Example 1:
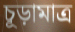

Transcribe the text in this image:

চূড়ামাত্র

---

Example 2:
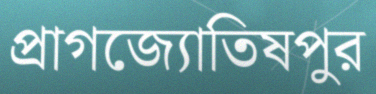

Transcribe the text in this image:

প্রাগজ্যোতিষপুর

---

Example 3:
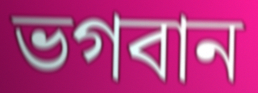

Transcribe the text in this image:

ভগবান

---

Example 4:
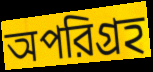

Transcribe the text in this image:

অপরিগ্রহ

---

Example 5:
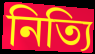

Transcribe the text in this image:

নিত্যি